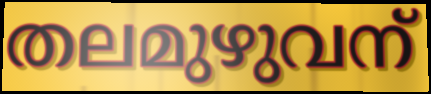
തലമുഴുവന്